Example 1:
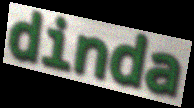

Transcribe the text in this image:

dinda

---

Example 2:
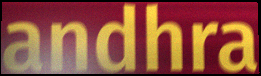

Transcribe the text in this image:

andhra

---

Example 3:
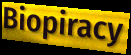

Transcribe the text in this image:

Biopiracy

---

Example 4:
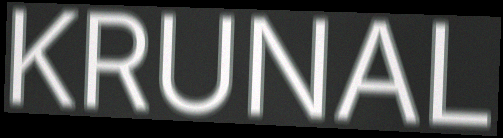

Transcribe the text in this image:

KRUNAL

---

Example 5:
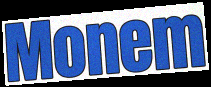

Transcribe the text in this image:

Monem